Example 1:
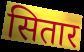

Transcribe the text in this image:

सितार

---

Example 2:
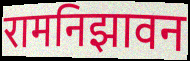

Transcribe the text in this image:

रामनिझावन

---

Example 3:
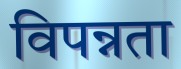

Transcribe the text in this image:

विपन्नता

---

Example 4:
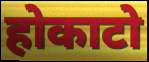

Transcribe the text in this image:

होकाटो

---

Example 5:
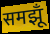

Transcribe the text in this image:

समझूँ